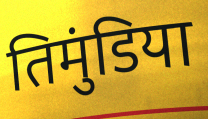
तिमुंडिया